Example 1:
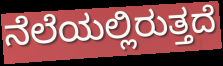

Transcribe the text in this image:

ನೆಲೆಯಲ್ಲಿರುತ್ತದೆ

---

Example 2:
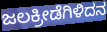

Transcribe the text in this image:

ಜಲಕ್ರೀಡೆಗಿಳಿದನ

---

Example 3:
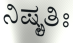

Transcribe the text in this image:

ನಿಷ್ಕೃತಿಃ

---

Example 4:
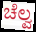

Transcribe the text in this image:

ಚೆಲ್ವ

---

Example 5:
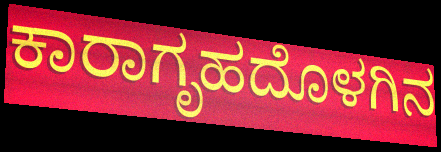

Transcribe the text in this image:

ಕಾರಾಗೃಹದೊಳಗಿನ